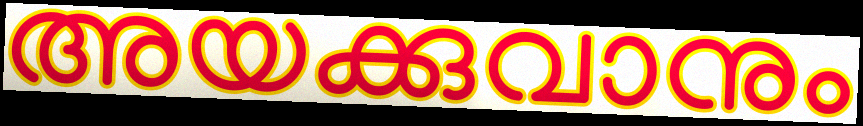
അയക്കുവാനും